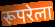
रूपरेला